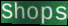
Shops